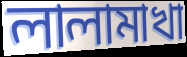
লালামাখা